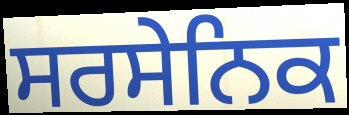
ਸਰਸੇਨਿਕ